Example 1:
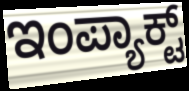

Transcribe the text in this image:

ಇಂಪ್ಯಾಕ್ಟ್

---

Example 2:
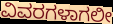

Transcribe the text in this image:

ವಿವರಗಳಾಗಲೀ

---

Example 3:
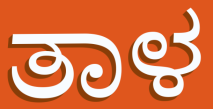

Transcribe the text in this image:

ತಾಳ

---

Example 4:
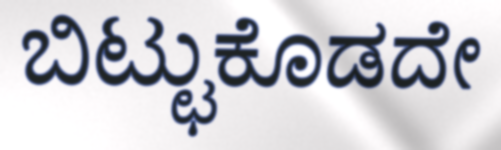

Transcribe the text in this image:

ಬಿಟ್ಟುಕೊಡದೇ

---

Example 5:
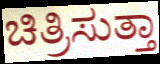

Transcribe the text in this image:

ಚಿತ್ರಿಸುತ್ತಾ